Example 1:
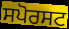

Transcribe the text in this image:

ਸਪੋਰਸਟ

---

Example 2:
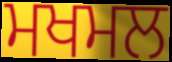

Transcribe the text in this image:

ਮਖਮਲ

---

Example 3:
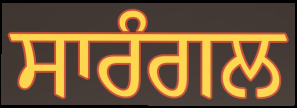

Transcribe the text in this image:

ਸਾਰੰਗਲ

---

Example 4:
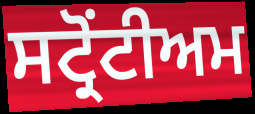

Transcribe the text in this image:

ਸਟ੍ਰੋਂਟੀਅਮ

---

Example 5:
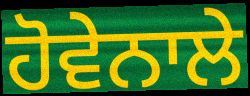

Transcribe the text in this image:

ਹੋਵੇਨਾਲੇ